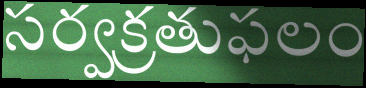
సర్వక్రతుఫలం